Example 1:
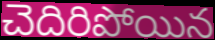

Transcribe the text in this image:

చెదిరిపోయిన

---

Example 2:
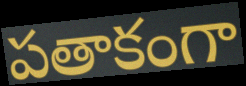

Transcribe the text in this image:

పతాకంగా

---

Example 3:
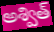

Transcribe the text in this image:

అశ్విత్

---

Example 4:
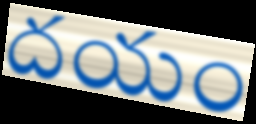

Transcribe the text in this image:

దయం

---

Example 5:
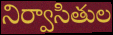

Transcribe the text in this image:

నిర్వాసితుల